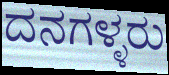
ದನಗಳ್ಳರು